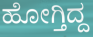
ಹೋಗ್ತಿದ್ದ